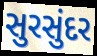
સુરસુંદર